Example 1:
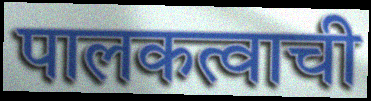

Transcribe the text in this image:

पालकत्वाची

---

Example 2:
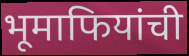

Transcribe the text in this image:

भूमाफियांची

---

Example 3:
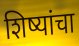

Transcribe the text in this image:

शिष्यांचा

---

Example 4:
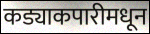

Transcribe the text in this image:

कड्याकपारीमधून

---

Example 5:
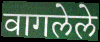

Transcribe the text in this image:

वागलेले